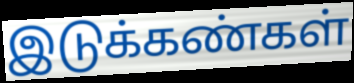
இடுக்கண்கள்